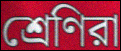
শ্রেণিরা